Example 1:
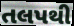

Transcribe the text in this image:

તલપથી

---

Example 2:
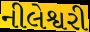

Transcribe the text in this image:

નીલેશ્વરી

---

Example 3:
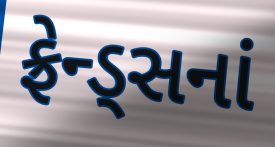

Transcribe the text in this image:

ફ્રેન્ડ્સનાં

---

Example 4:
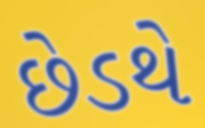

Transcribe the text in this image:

છેડથે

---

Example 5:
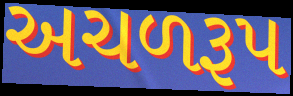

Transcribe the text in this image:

અચળરૂપ